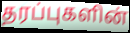
தரப்புகளின்